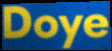
Doye